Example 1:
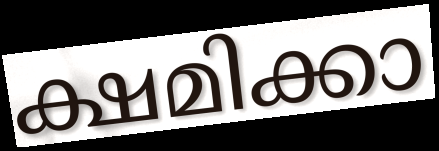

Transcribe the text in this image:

ക്ഷമിക്കാ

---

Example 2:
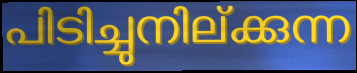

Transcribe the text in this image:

പിടിച്ചുനില്ക്കുന്ന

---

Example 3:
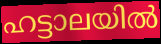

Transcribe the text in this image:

ഹട്ടാലയിൽ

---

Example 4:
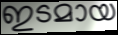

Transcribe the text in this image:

ഇടമായ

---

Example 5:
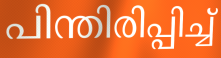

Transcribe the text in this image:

പിന്തിരിപ്പിച്ച്